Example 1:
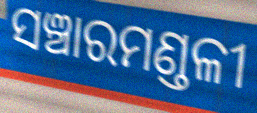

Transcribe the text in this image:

ସଞ୍ଚାରମଣ୍ଡଳୀ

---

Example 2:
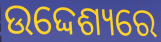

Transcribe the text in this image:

ଉଦ୍ଦେଶ୍ୟରେ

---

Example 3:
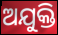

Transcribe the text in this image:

ଅଯୁକ୍ତି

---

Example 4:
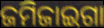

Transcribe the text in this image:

ଜମିଜାଇଗା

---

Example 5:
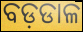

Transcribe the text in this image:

ବଡ଼ଡାଳ